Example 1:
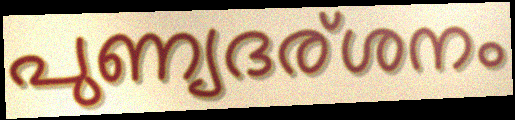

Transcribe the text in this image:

പുണ്യദര്ശനം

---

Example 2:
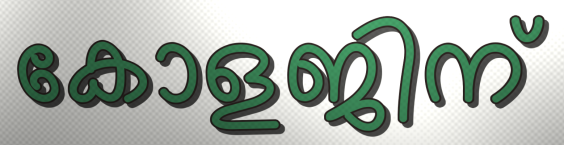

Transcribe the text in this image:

കോളജിന്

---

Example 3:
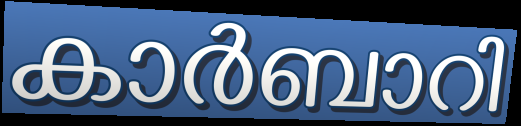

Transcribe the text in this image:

കാർബാറി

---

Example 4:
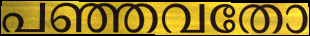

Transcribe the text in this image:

പഞ്ഞവതോ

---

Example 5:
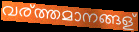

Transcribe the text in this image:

വര്ത്തമാനങ്ങള്